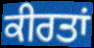
ਕੀਰਤਾਂ